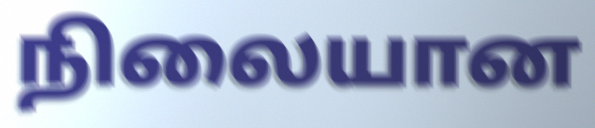
நிலையான